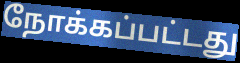
நோக்கப்பட்டது